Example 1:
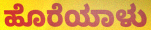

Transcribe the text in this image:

ಹೊರೆಯಾಳು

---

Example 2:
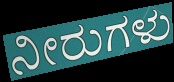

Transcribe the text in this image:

ನೀರುಗಳು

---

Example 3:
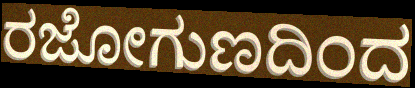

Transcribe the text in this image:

ರಜೋಗುಣದಿಂದ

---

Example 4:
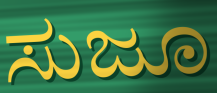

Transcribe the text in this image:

ಸುಜೂ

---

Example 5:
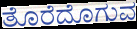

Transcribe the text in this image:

ತೊರೆದೊಗುವ